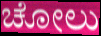
ಚೋಲು